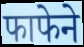
फाफेने